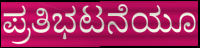
ಪ್ರತಿಭಟನೆಯೂ